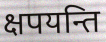
क्षपयन्ति